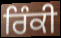
ਰਿੰਕੀ